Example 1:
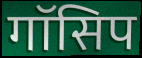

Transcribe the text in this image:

गॉसिप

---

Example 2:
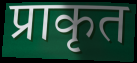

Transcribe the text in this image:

प्राकृत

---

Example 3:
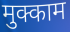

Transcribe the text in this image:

मुक्काम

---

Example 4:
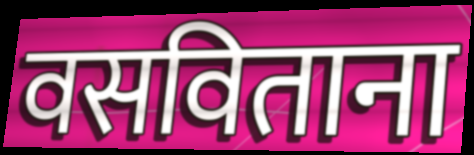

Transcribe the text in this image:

वसविताना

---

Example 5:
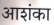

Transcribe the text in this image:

आशंका